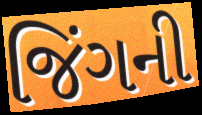
જિંગની